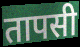
तापसी